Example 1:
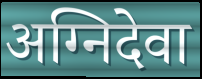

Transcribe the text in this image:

अग्निदेवा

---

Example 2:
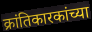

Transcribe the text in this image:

क्रांतिकारकांच्या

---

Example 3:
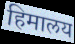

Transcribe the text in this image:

हिमालय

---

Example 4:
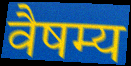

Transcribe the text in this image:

वैषम्य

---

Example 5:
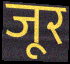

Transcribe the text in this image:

जूर